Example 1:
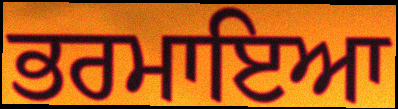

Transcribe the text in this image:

ਭਰਮਾਇਆ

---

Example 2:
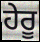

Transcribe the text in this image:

ਹੇਰੂ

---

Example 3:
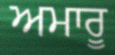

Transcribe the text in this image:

ਅਮਾਰੂ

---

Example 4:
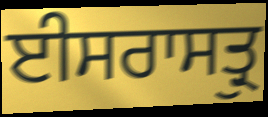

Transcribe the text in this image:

ਈਸਰਾਸਤ੍ਰੁ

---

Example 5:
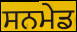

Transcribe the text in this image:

ਸਨਮੇਡ